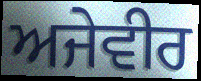
ਅਜੇਵੀਰ